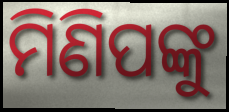
ମିଣିପଙ୍କୁ